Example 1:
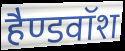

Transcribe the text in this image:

हैण्डवॉश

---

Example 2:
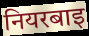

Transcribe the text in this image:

नियरबाइ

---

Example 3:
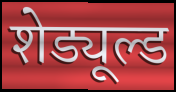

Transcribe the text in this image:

शेड्यूल्ड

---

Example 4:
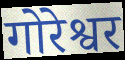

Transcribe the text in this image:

गोरेश्वर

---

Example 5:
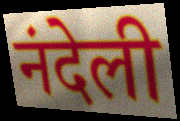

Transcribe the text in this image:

नंदेली